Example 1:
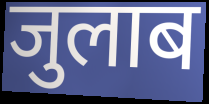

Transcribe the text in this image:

जुलाब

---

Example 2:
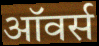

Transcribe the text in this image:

ऑवर्स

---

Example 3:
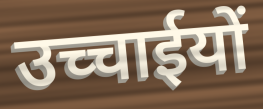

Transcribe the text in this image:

उच्चाईयों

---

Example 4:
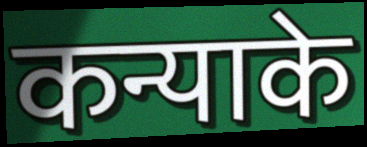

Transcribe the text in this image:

कन्याके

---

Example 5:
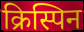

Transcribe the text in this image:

क्रिस्पिन